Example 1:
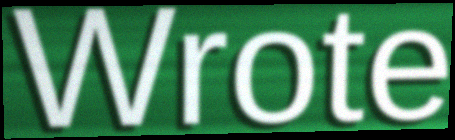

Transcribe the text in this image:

Wrote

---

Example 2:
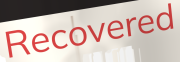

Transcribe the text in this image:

Recovered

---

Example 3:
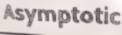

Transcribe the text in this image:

Asymptotic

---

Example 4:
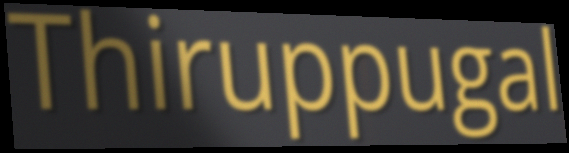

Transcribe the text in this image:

Thiruppugal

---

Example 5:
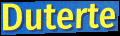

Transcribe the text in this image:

Duterte